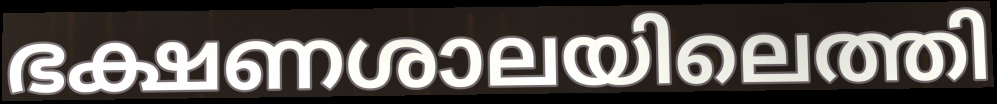
ഭക്ഷണശാലയിലെത്തി